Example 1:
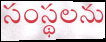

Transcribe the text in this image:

సంస్థలను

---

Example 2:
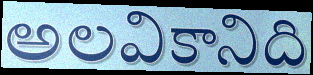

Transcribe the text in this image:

అలవికానిది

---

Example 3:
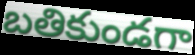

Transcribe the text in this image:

బతికుండగా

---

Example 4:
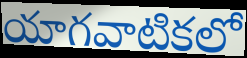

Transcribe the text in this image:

యాగవాటికలో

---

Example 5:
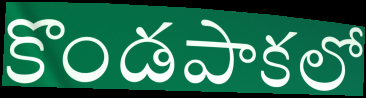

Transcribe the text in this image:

కొండపాకలో